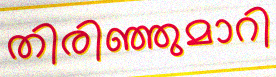
തിരിഞ്ഞുമാറി